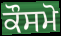
ਕੌਸਮੋ